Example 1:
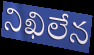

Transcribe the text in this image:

నిఖిలేన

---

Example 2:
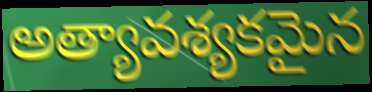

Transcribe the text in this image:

అత్యావశ్యకమైన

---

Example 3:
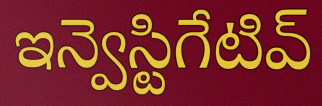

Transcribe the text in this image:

ఇన్వెస్టిగేటివ్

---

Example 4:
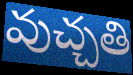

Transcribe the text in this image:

వుచ్చతి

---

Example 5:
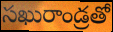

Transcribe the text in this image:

సఖురాండ్రతో